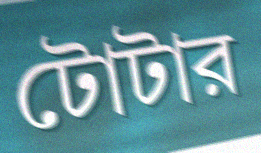
টোটার